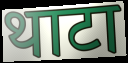
थाटा